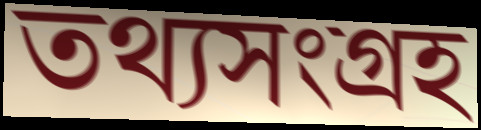
তথ্যসংগ্ৰহ